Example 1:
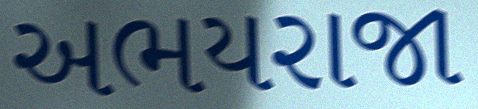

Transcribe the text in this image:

અભયરાજા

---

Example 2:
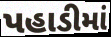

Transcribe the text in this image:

પહાડીમાં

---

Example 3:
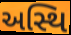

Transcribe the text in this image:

અસ્થિ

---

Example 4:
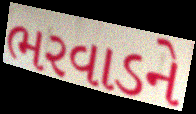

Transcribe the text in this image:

ભરવાડને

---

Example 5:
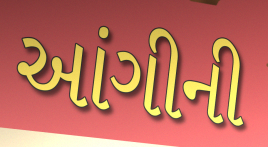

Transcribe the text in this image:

આંગીની